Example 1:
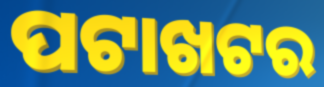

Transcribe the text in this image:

ପଟାଖଟର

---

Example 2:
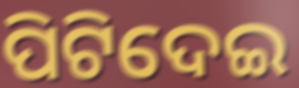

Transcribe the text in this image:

ପିଟିଦେଇ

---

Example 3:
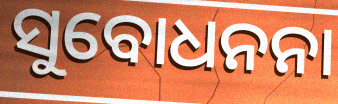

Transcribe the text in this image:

ସୁବୋଧନନା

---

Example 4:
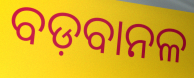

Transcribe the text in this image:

ବଡ଼ବାନଳ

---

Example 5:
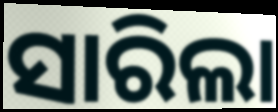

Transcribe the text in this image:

ସାରିଲା